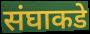
संघाकडे